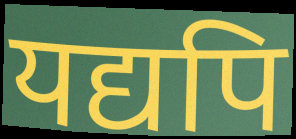
यद्यपि